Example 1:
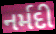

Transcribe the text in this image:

નર્મદી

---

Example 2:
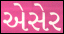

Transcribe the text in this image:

એસેર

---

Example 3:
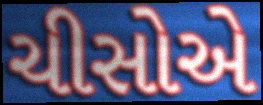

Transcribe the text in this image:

ચીસોએ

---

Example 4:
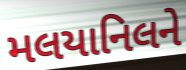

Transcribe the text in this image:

મલયાનિલને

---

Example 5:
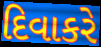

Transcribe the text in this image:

દિવાકરે